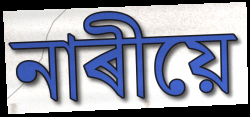
নাৰীয়ে